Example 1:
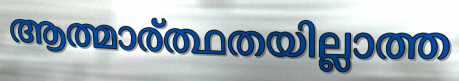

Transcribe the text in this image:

ആത്മാര്ത്ഥതയില്ലാത്ത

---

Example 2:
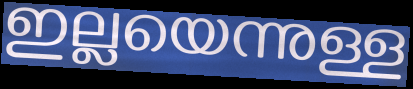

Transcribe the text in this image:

ഇല്ലയെന്നുള്ള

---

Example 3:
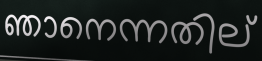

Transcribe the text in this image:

ഞാനെന്നതില്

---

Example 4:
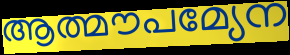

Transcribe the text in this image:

ആത്മൗപമ്യേന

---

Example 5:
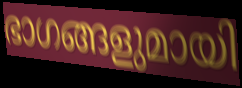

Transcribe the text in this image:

ഭാഗങ്ങളുമായി